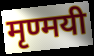
मृण्मयी